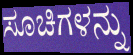
ಸೂಚಿಗಳನ್ನು